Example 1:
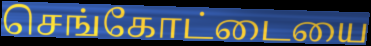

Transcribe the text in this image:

செங்கோட்டையை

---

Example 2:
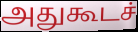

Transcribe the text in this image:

அதுகூடச்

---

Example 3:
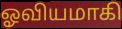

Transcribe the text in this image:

ஓவியமாகி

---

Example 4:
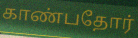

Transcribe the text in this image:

காண்பதோர்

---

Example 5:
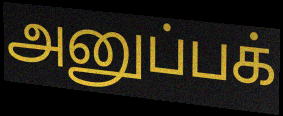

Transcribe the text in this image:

அனுப்பக்